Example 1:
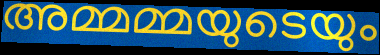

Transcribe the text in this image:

അമ്മമ്മയുടെയും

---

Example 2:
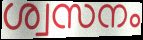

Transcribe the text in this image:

ശ്വസനം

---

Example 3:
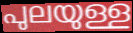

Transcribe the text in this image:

പുലയുള്ള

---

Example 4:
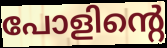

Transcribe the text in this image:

പോളിന്റെ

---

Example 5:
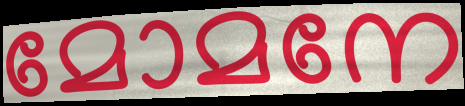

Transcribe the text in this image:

മോമനേ